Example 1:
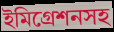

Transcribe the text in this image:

ইমিগ্রেশনসহ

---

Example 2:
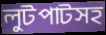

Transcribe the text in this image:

লুটপাটসহ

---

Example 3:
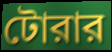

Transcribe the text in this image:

টোরার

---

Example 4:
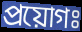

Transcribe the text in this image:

প্রয়োগঃ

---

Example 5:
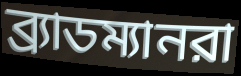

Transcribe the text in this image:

ব্র্যাডম্যানরা